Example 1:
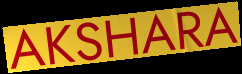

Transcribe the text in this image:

AKSHARA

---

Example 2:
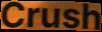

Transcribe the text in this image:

Crush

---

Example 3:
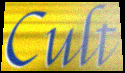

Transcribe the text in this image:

Cult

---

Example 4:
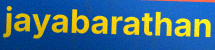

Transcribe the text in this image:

jayabarathan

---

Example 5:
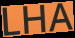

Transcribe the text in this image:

LHA